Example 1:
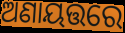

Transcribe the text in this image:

ଅଣାୟତ୍ତରେ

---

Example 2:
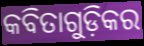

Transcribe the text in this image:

କବିତାଗୁଡ଼ିକର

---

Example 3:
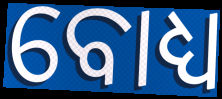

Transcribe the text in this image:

ବୋଧ୍ୟ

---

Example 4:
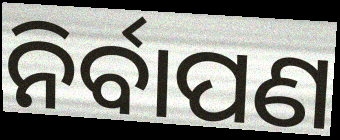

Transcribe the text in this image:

ନିର୍ବାପଣ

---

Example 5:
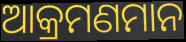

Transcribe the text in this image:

ଆକ୍ରମଣମାନ